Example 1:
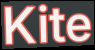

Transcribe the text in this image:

Kite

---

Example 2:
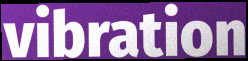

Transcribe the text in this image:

vibration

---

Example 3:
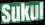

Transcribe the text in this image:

Sukul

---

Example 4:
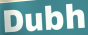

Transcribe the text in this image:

Dubh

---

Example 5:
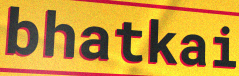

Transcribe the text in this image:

bhatkai